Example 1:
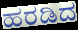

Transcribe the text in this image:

ಹರಡಿದ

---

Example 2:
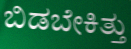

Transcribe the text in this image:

ಬಿಡಬೇಕಿತ್ತು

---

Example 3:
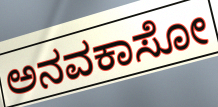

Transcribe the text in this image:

ಅನವಕಾಸೋ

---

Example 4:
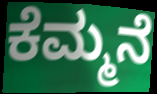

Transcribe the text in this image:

ಕೆಮ್ಮನೆ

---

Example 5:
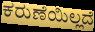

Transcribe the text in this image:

ಕರುಣೆಯಿಲ್ಲದೆ